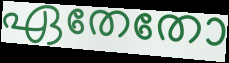
ഏതേതോ